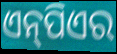
ଏନ୍‌ପିଏର